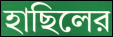
হাছিলের